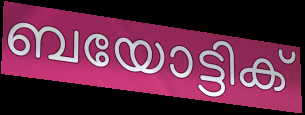
ബയോട്ടിക്